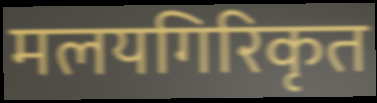
मलयगिरिकृत